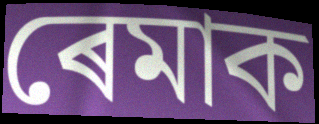
ৰেমাক